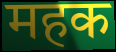
महक